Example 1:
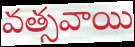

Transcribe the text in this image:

వత్సవాయి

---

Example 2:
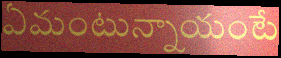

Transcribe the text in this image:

ఏమంటున్నాయంటే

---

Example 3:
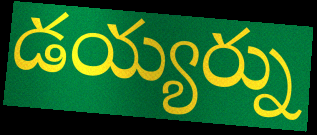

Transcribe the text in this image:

డయ్యర్ను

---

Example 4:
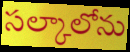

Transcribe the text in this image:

సల్కాలోను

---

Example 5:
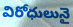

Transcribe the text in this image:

విరోధులునై